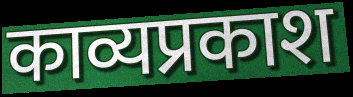
काव्यप्रकाश